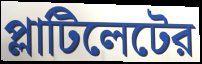
প্লাটিলেটের